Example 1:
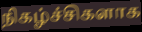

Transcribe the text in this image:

நிகழ்ச்சிகளாக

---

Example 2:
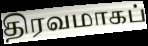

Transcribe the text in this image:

திரவமாகப்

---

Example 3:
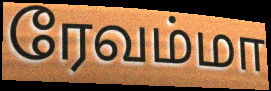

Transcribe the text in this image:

ரேவம்மா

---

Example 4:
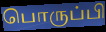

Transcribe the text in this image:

பொருப்பி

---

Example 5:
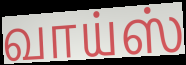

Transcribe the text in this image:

வாய்ஸ்